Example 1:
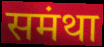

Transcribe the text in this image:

समंथा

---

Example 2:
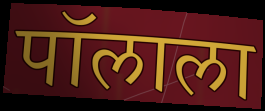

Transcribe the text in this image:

पॉलाला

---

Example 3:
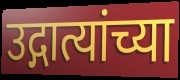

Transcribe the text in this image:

उद्गात्यांच्या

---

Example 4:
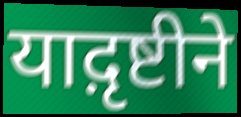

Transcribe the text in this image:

याद़ृष्टीने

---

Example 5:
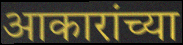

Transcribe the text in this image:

आकारांच्या